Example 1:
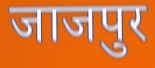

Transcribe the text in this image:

जाजपुर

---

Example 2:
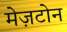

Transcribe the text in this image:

मेज़टोन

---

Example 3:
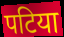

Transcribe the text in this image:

पटिया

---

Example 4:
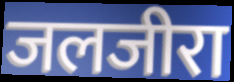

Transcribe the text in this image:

जलजीरा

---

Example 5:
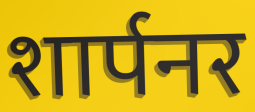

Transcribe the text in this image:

शार्पनर